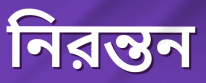
নিরন্তন